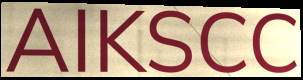
AIKSCC